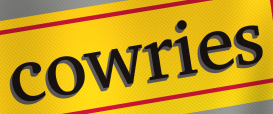
cowries